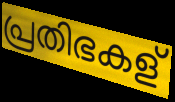
പ്രതിഭകള്